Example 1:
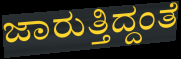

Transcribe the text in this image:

ಜಾರುತ್ತಿದ್ದಂತೆ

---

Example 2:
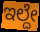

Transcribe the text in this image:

ಇಲ್ದೇ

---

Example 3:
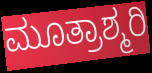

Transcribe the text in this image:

ಮೂತ್ರಾಶ್ಮರಿ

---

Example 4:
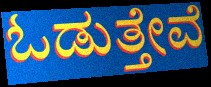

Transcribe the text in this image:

ಓಡುತ್ತೇವೆ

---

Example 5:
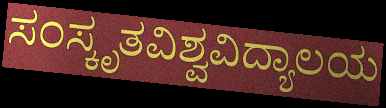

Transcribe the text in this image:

ಸಂಸ್ಕೃತವಿಶ್ವವಿದ್ಯಾಲಯ